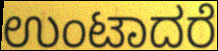
ಉಂಟಾದರೆ